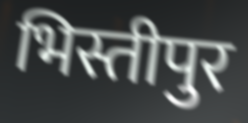
भिस्तीपुर